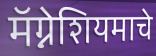
मॅग्नेशियमाचे